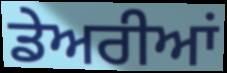
ਡੇਅਰੀਆਂ